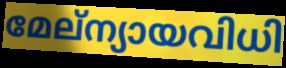
മേല്ന്യായവിധി